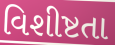
વિશીષ્ટતા